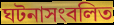
ঘটনাসংবলিত